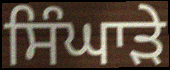
ਸਿੰਘਾੜੇ